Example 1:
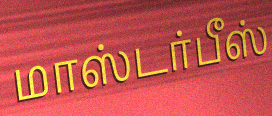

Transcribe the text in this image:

மாஸ்டர்பீஸ்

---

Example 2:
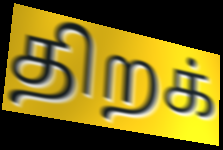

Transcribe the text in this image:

திறக்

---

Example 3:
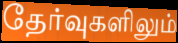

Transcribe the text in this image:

தேர்வுகளிலும்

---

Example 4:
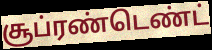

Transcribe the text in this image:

சூப்ரண்டெண்ட்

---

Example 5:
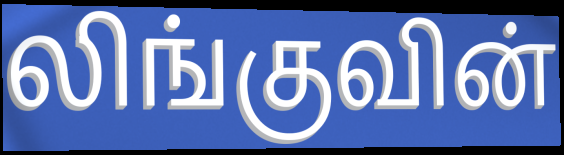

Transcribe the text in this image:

லிங்குவின்